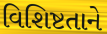
વિશિષ્ટતાને